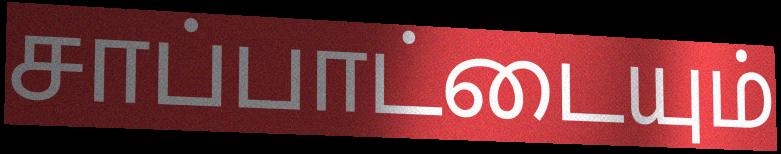
சாப்பாட்டையும்